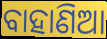
ବାହାଣିଆ